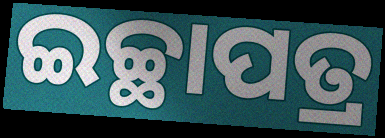
ଇଚ୍ଛାପତ୍ର